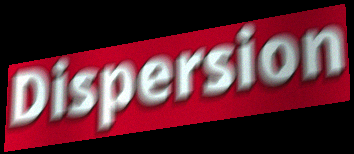
Dispersion